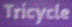
Tricycle